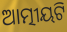
ଆତ୍ମୀୟଟି